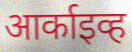
आर्काइव्ह